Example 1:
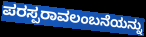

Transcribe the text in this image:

ಪರಸ್ಪರಾವಲಂಬನೆಯನ್ನು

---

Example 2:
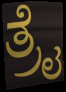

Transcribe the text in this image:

ತ್ರೈ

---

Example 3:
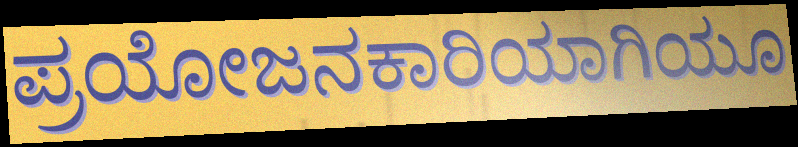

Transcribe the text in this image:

ಪ್ರಯೋಜನಕಾರಿಯಾಗಿಯೂ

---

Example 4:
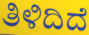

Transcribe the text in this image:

ತಿಳಿದಿದೆ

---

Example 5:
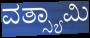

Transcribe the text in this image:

ವತ್ಸ್ಯಾಮಿ